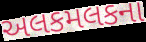
અલકમલકના